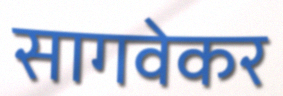
सागवेकर